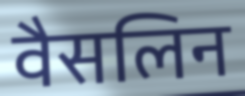
वैसलिन